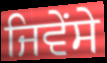
ਜਿਵੇਂਸੇ